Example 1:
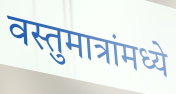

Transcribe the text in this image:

वस्तुमात्रांमध्ये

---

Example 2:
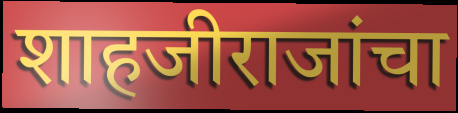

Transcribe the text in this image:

शाहजीराजांचा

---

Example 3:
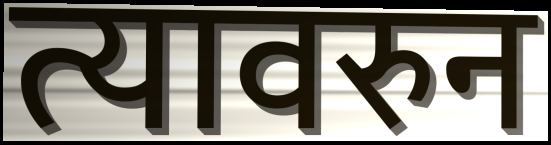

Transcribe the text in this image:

त्यावरुन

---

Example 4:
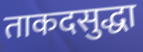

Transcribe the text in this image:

ताकदसुद्धा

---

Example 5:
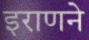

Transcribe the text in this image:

इराणने